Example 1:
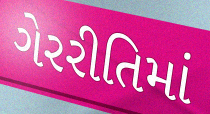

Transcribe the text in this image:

ગેરરીતિમાં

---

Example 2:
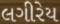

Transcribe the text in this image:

લગીરેય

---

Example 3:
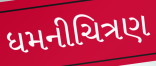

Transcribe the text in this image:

ધમનીચિત્રણ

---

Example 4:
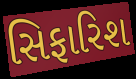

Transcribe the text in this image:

સિફારિશ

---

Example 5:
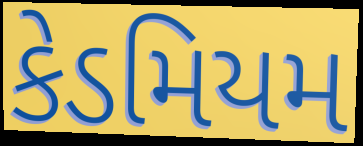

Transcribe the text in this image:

કેડમિયમ